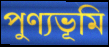
পুণ্যভূমি